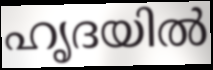
ഹൃദയിൽ